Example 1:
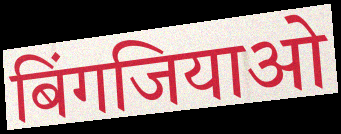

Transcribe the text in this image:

बिंगजियाओ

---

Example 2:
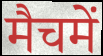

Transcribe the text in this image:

मैचमें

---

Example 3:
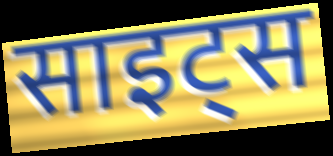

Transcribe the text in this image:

साइट्स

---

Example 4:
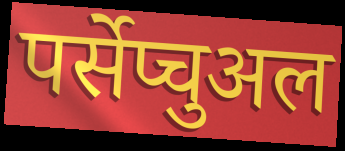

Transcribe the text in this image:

पर्सेप्चुअल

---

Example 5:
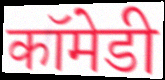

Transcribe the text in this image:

कॉमेडी